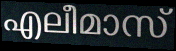
എലീമാസ്